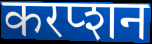
करप्शन